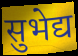
सुभेद्य